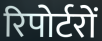
रिपोर्टरों